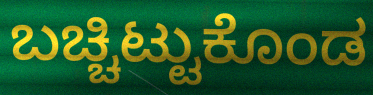
ಬಚ್ಚಿಟ್ಟುಕೊಂಡ